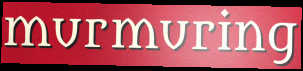
murmuring